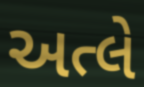
અત્લે